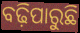
ବଢ଼ିପାରୁଛି